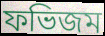
ফভিজম